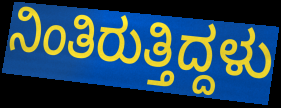
ನಿಂತಿರುತ್ತಿದ್ದಳು